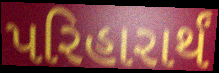
પરિહારાર્થં